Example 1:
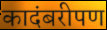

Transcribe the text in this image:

कादंबरीपण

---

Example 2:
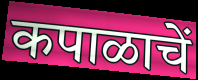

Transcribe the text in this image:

कपाळाचें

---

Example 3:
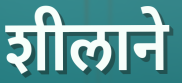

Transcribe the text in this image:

शीलाने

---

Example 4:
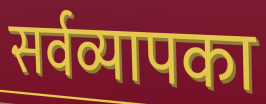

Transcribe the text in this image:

सर्वव्यापका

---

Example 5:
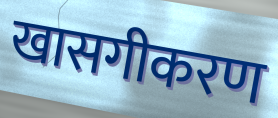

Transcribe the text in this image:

खासगीकरण